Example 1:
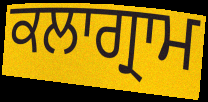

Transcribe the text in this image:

ਕਲਾਗ੍ਰਾਮ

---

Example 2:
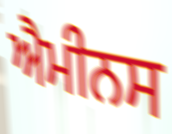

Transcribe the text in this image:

ਐਮੀਨਸ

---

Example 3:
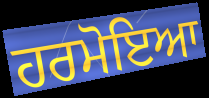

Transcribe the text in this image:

ਹਰਮੋਇਆ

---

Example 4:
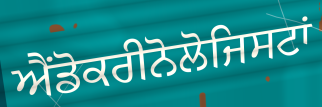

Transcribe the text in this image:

ਐਂਡੋਕਰੀਨੋਲੋਜਿਸਟਾਂ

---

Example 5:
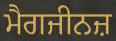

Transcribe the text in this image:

ਮੈਗਜੀਨਜ਼